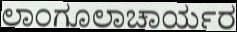
ಲಾಂಗೂಲಾಚಾರ್ಯರ